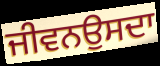
ਜੀਵਨਉਸਦਾ